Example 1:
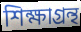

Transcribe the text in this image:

শিক্ষাগ্রন্থ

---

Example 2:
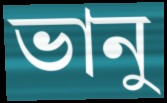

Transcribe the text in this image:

ভানু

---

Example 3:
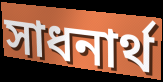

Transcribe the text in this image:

সাধনার্থ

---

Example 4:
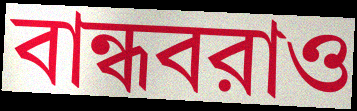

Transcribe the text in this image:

বান্ধবরাও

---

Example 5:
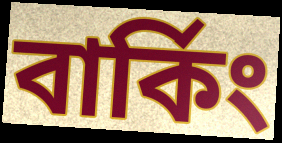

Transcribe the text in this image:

বার্কিং